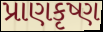
પ્રાણકૃષ્ણ